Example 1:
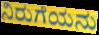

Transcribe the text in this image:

ನಿರುಗೆಯನು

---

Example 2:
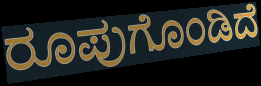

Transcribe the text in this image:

ರೂಪುಗೊಂಡಿದೆ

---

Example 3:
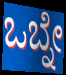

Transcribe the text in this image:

ಒಬ್ನೇ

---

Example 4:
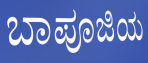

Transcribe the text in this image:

ಬಾಪೂಜಿಯ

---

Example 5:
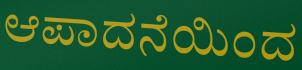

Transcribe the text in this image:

ಆಪಾದನೆಯಿಂದ